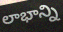
లాభాన్ని